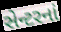
સેન્ટરનાં